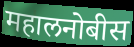
महालनोबीस